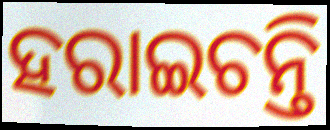
ହରାଇଚନ୍ତି